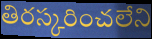
తిరస్కరించలేని